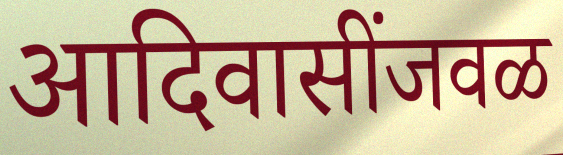
आदिवासींजवळ